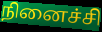
நினைச்சி